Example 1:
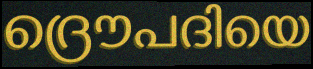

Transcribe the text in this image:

ദ്രൌപദിയെ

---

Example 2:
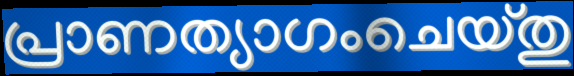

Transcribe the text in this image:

പ്രാണത്യാഗംചെയ്തു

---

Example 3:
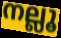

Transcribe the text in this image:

നല്ലൂ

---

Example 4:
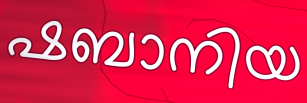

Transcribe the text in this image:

ഷബാനിയ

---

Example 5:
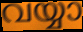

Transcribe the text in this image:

വയ്യാ